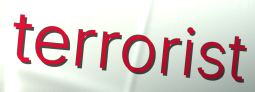
terrorist